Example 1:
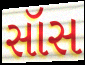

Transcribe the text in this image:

સૉસ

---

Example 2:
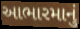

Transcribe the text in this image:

આભારમાનું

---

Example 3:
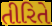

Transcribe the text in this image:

તીરિતે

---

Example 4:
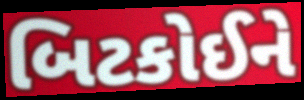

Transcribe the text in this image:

બિટકોઈને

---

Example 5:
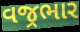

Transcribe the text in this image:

વજ્રભાર